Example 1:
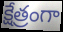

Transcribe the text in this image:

క్షేత్రంగా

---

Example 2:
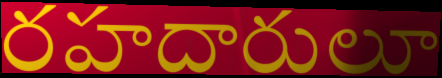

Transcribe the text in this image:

రహదారులూ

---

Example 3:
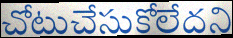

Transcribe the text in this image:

చోటుచేసుకోలేదని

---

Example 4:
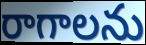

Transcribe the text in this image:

రాగాలను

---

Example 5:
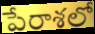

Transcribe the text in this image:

పేరాశలో